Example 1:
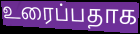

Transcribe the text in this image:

உரைப்பதாக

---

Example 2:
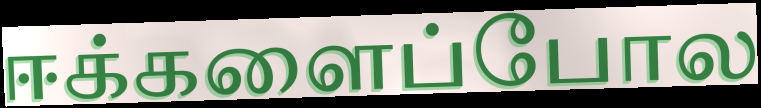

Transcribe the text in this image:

ஈக்களைப்போல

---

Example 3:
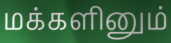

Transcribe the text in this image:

மக்களினும்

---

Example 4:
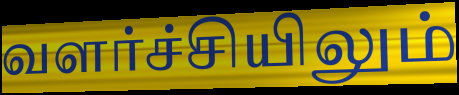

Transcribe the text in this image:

வளர்ச்சியிலும்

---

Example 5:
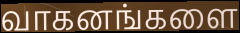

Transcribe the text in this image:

வாகனங்களை